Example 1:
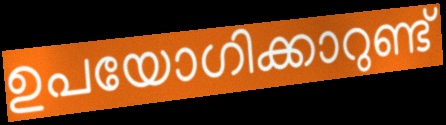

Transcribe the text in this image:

ഉപയോഗിക്കാറുണ്ട്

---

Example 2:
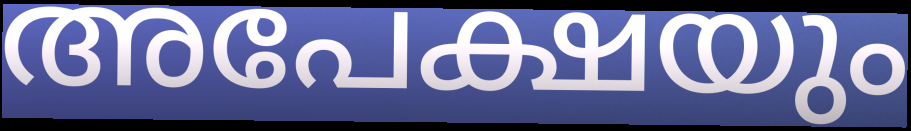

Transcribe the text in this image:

അപേക്ഷയും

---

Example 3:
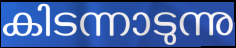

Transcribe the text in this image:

കിടന്നാടുന്നു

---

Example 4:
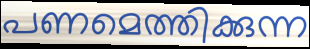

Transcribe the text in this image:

പണമെത്തിക്കുന്ന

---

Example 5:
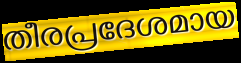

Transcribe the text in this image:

തീരപ്രദേശമായ